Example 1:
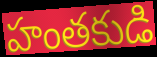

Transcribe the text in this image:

హంతకుడి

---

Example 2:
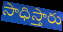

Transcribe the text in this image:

సాధిస్తారు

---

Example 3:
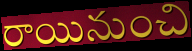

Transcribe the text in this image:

రాయినుంచి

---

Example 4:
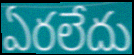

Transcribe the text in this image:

ఏరలేదు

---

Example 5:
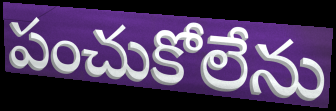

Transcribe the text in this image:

పంచుకోలేను